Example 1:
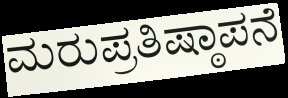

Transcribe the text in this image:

ಮರುಪ್ರತಿಷ್ಠಾಪನೆ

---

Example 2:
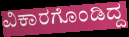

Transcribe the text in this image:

ವಿಕಾರಗೊಂಡಿದ್ದ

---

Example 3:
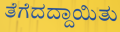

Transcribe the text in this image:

ತೆಗೆದದ್ದಾಯಿತು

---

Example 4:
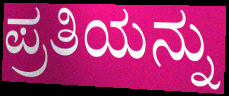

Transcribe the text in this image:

ಪ್ರತಿಯನ್ನು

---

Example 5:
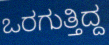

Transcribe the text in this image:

ಒರಗುತ್ತಿದ್ದ